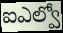
ఐఎల్వో